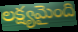
లక్ష్యమైంది